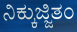
ನಿಕ್ಕುಜ್ಜಿತಂ